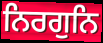
ਨਿਰਗੁਨਿ